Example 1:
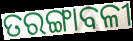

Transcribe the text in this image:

ତରଙ୍ଗାବଳୀ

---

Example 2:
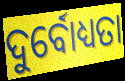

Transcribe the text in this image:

ଦୁର୍ବୋଧ୍ୟତା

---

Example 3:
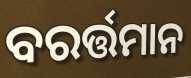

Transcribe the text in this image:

ବରର୍ତ୍ତମାନ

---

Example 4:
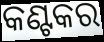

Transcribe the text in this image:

କଣ୍ଟକର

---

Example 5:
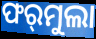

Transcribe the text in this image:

ଫର୍‌ମୁଲା